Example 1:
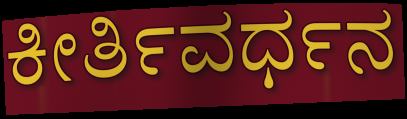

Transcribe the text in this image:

ಕೀರ್ತಿವರ್ಧನ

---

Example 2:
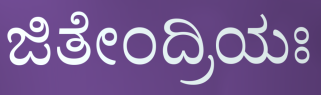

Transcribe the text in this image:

ಜಿತೇಂದ್ರಿಯಃ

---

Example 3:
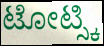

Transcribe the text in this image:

ಟೋಟ್ಸ್ಕಿ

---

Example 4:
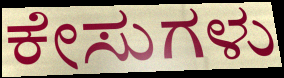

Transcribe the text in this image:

ಕೇಸುಗಳು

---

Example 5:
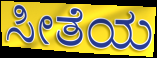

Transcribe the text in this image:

ಸೀತೆಯ